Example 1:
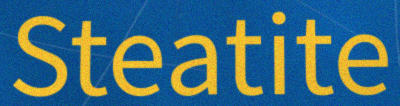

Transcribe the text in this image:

Steatite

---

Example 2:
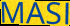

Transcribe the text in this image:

MASI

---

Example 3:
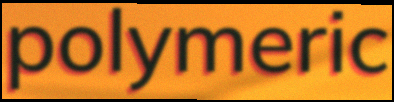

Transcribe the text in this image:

polymeric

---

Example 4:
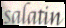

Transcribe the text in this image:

salatin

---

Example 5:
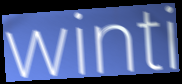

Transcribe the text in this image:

winti